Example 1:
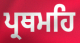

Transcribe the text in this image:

ਪ੍ਰਥਮਹਿ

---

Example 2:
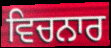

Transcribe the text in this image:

ਵਿਚਨਾਰ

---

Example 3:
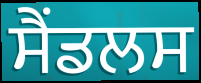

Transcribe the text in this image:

ਸੈਂਡਲਸ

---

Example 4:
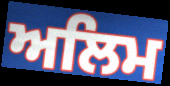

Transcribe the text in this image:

ਅਲਿਮ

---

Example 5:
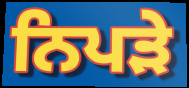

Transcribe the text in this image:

ਨਿਪੜੇ